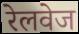
रेलवेज